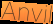
Anvil